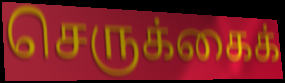
செருக்கைக்